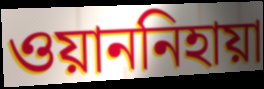
ওয়াননিহায়া